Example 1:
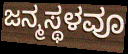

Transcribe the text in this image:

ಜನ್ಮಸ್ಥಳವೂ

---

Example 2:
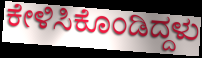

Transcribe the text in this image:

ಕೇಳಿಸಿಕೊಂಡಿದ್ದಳು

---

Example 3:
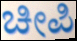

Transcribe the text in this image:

ಚೀಪಿ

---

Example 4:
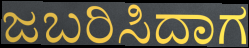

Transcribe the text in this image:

ಜಬರಿಸಿದಾಗ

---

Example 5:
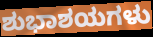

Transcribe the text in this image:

ಶುಭಾಶಯಗಳು